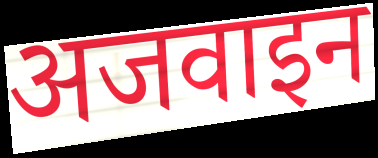
अजवाइन